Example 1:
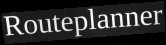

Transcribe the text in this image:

Routeplanner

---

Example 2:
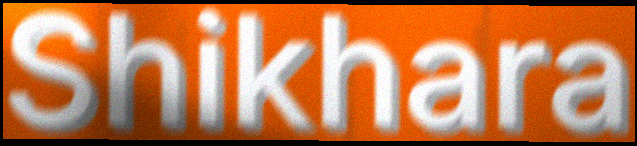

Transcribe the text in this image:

Shikhara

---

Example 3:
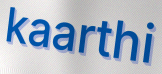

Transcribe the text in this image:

kaarthi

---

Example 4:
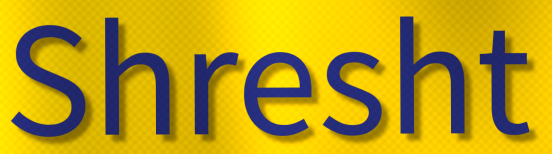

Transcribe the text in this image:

Shresht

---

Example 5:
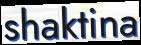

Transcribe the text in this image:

shaktina